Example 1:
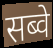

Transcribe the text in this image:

सब्वे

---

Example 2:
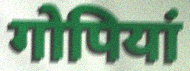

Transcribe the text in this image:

गोपियां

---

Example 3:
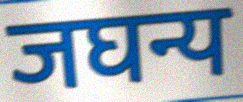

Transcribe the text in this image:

जघन्य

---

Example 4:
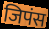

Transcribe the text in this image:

जिपंस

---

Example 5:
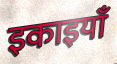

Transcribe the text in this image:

इकाइयाँ